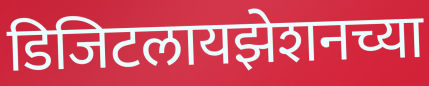
डिजिटलायझेशनच्या